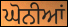
ਘੋਨੀਆਂ